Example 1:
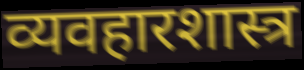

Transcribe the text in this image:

व्यवहारशास्त्र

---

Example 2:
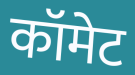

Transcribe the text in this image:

कॉमेट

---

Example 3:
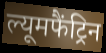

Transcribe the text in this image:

ल्यूमफैंट्रिन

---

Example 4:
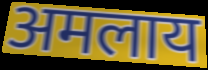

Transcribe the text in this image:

अमलाय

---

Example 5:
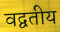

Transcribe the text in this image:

वद्वतीय